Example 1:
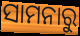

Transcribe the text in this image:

ସାମନାରୁ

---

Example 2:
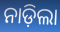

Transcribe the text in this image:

ନାଡ଼ିଲା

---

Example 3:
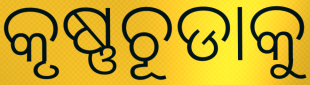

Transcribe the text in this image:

କୃଷ୍ଣଚୂଡାକୁ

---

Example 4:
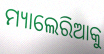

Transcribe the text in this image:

ମ୍ୟାଲେରିଆକୁ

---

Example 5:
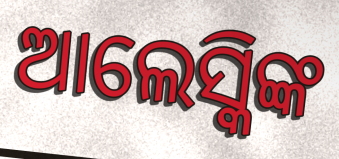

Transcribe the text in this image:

ଆଲେସ୍କିଙ୍କ